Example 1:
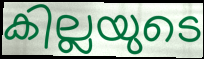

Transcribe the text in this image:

കില്ലയുടെ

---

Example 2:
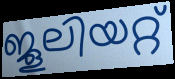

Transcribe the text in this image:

ജൂലിയറ്റ്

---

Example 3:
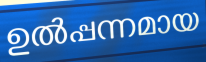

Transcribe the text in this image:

ഉൽപ്പന്നമായ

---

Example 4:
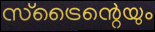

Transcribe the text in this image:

സ്ട്രൈന്റെയും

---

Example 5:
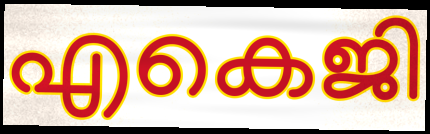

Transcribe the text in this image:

എകെജി